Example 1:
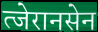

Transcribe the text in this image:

त्जेरानसेन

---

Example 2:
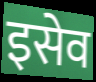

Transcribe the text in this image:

इसेव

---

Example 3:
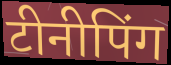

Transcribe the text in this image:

टीनीपिंग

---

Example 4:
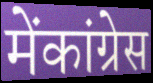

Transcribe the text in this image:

मेंकांग्रेस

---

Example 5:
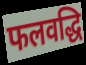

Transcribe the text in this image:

फलवद्धि